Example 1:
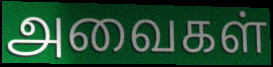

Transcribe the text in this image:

அவைகள்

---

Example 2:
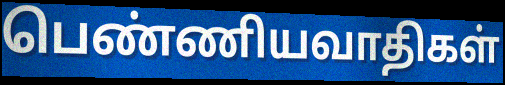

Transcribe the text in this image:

பெண்ணியவாதிகள்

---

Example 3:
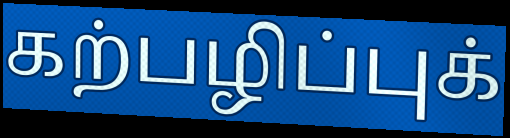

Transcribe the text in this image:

கற்பழிப்புக்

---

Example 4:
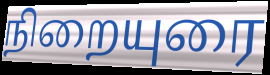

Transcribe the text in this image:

நிறையுரை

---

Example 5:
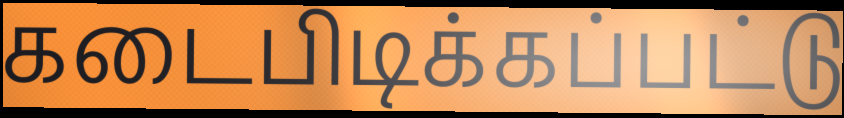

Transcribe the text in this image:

கடைபிடிக்கப்பட்டு